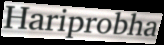
Hariprobha